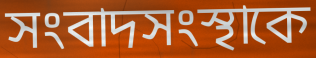
সংবাদসংস্থাকে